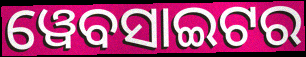
ୱେବସାଇଟର